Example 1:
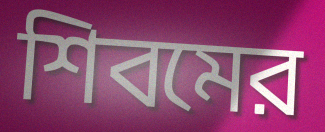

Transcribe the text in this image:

শিবমের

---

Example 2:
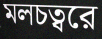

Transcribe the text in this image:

মলচত্বরে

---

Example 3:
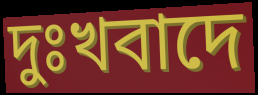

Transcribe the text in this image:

দুঃখবাদে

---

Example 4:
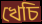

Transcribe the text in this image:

খেচি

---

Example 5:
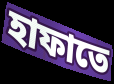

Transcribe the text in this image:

হাফাতে